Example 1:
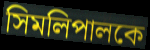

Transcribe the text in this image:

সিমলিপালকে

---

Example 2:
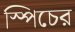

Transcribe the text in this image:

স্পিচের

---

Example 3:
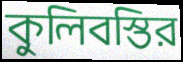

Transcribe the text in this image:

কুলিবস্তির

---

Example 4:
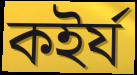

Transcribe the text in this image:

কইর্য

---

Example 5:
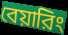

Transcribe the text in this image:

বেয়ারিং